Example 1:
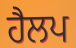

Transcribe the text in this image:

ਹੈਲਪ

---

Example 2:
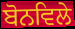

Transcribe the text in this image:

ਬੋਨਵਿਲੇ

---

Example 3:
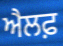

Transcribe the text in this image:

ਐਲਫ਼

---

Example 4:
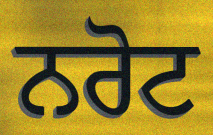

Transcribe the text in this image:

ਨਰੋਟ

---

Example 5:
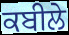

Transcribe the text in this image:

ਕਬੀਲੇ